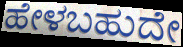
ಹೇಳಬಹುದೇ